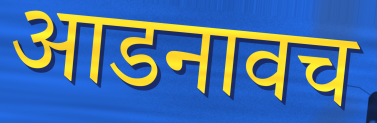
आडनावच